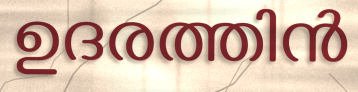
ഉദരത്തിൻ